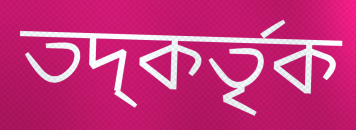
তদ্‌কর্তৃক